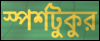
স্পর্শটুকুর